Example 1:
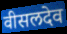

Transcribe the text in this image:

वीसलदेव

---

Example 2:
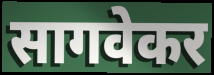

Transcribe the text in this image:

सागवेकर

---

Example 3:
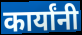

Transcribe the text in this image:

कार्यांनी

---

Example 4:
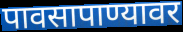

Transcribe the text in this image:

पावसापाण्यावर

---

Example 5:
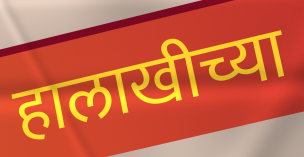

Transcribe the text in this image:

हालाखीच्या